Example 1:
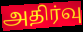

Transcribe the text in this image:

அதிர்வு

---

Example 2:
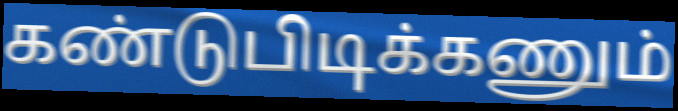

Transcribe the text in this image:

கண்டுபிடிக்கணும்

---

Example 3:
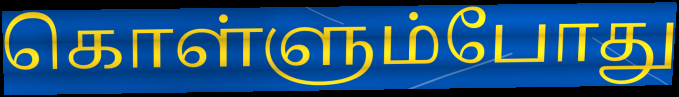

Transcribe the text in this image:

கொள்ளும்போது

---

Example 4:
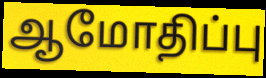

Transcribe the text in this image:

ஆமோதிப்பு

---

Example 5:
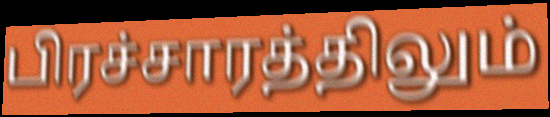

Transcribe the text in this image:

பிரச்சாரத்திலும்